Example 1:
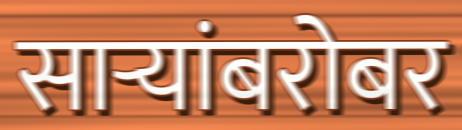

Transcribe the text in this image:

साऱ्यांबरोबर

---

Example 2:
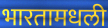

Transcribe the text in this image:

भारतामधली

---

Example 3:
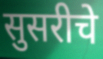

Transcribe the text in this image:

सुसरीचे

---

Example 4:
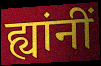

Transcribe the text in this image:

ह्यांनीं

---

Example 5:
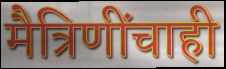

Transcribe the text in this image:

मैत्रिणींचाही